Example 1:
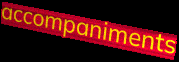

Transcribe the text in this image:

accompaniments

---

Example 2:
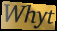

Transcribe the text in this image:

Whyt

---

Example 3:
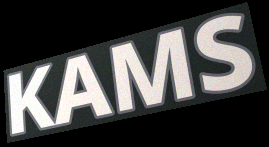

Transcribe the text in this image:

KAMS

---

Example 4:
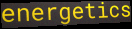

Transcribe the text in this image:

energetics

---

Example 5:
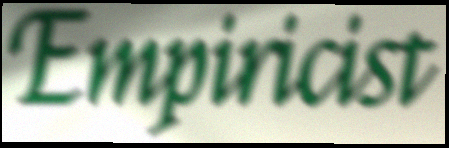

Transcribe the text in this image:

Empiricist